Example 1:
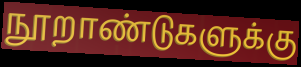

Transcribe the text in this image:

நூறாண்டுகளுக்கு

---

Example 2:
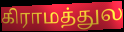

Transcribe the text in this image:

கிராமத்துல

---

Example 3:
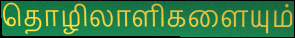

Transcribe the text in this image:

தொழிலாளிகளையும்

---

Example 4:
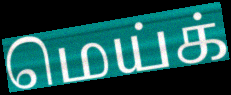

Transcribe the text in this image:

மெய்க்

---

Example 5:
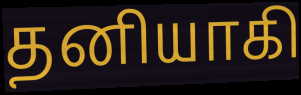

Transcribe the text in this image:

தனியாகி